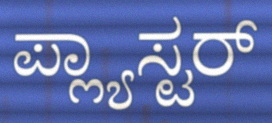
ಪ್ಲ್ಯಾಸ್ಟರ್